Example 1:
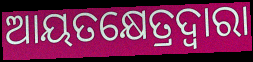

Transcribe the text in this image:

ଆୟତକ୍ଷେତ୍ରଦ୍ଵାରା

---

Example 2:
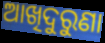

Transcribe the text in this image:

ଆଖିଦୁରୁଣା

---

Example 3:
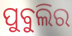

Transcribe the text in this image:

ପୁବୁଲିର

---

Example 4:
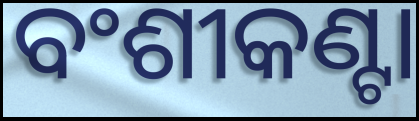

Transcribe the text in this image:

ବଂଶୀକଣ୍ଟା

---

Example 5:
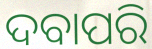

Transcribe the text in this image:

ଦବାପରି